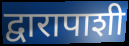
द्वारापाशी